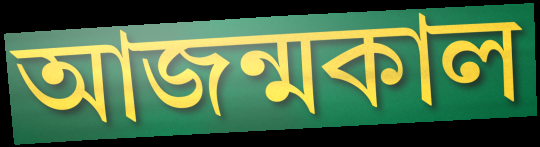
আজন্মকাল